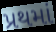
પ્રથમાં